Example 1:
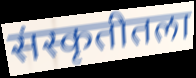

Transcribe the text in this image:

संस्कृतीतला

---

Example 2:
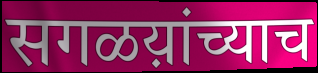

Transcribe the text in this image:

सगळय़ांच्याच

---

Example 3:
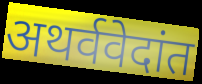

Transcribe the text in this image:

अथर्ववेदांत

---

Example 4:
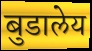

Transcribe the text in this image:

बुडालेय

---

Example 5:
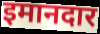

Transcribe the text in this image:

इमानदार